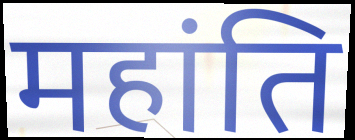
महांति